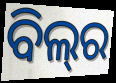
ବିଲ୍‌ର